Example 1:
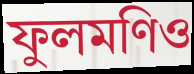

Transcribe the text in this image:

ফুলমণিও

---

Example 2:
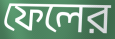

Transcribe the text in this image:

ফেলের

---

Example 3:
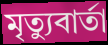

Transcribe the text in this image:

মৃত্যুবার্তা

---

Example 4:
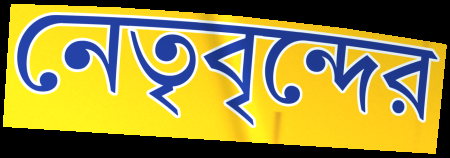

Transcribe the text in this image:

নেতৃবৃন্দের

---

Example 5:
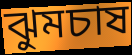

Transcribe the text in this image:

ঝুমচাষ